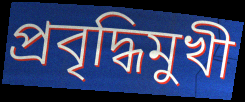
প্রবৃদ্ধিমুখী